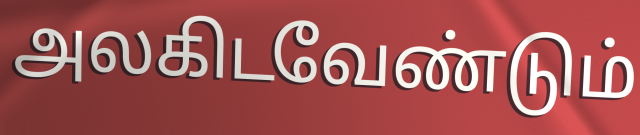
அலகிடவேண்டும்